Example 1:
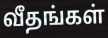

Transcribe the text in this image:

வீதங்கள்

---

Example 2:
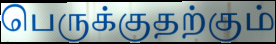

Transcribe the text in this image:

பெருக்குதற்கும்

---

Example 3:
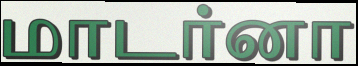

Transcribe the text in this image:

மாடர்னா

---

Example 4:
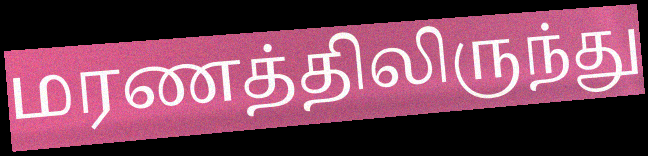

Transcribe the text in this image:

மரணத்திலிருந்து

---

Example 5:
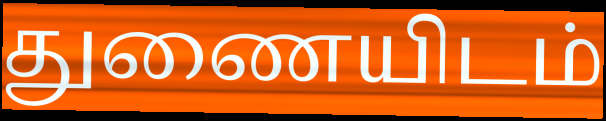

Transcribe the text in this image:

துணையிடம்